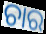
ଚାର